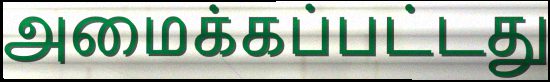
அமைக்கப்பட்டது